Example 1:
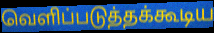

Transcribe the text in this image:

வெளிப்படுத்தக்கூடிய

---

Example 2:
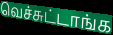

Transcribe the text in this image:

வெச்சுட்டாங்க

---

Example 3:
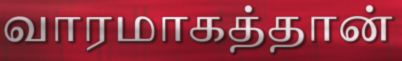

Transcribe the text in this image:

வாரமாகத்தான்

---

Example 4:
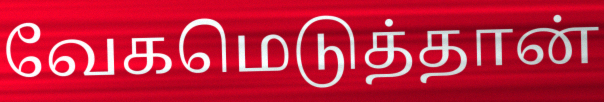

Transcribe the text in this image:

வேகமெடுத்தான்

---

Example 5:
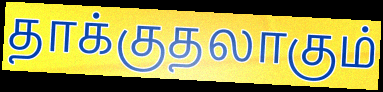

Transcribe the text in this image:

தாக்குதலாகும்